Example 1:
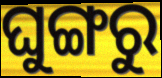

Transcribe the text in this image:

ଘୁଙ୍ଗରୁ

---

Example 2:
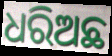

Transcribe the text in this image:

ଧରିଅଛ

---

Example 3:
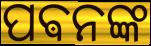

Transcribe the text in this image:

ପଵନଙ୍କ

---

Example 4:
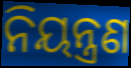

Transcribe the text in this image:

ନିୟନ୍ତ୍ରଣ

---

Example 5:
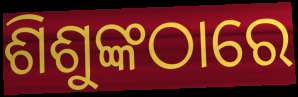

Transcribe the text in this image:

ଶିଶୁଙ୍କଠାରେ